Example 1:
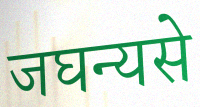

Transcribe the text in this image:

जघन्यसे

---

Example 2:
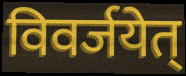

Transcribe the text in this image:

विवर्जयेत्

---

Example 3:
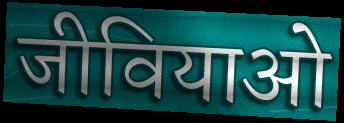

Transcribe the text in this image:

जीवियाओ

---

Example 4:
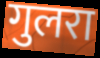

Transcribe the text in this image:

गुलरा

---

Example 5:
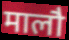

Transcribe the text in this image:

मालौ